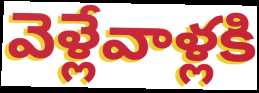
వెళ్లేవాళ్లకి